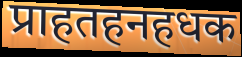
प्राहतहनहधक